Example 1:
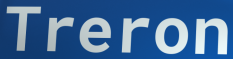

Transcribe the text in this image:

Treron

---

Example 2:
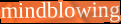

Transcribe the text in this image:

mindblowing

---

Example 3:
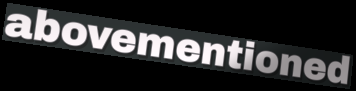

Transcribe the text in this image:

abovementioned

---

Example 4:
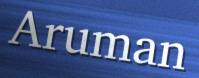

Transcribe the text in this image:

Aruman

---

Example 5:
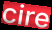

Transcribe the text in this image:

cire